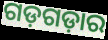
ଗଡ଼ଗଡ଼ାର